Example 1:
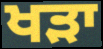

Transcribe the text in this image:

ਖੜਾ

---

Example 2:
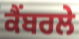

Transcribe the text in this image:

ਕੈਂਬਰਲੇ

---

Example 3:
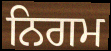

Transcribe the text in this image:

ਨਿਗਮ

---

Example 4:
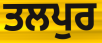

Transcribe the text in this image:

ਤਲਪੁਰ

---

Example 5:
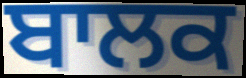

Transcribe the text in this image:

ਬਾਲਕ